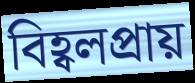
বিহ্বলপ্রায়